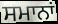
ਸਮਾਨਾਂ